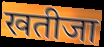
खतीजा